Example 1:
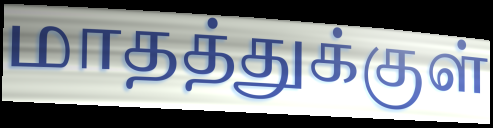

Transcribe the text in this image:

மாதத்துக்குள்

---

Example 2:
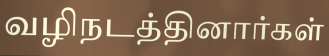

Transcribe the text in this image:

வழிநடத்தினார்கள்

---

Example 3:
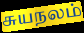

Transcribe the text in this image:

சுயநலம்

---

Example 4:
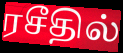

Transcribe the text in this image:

ரசீதில்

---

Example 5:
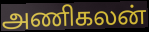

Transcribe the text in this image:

அணிகலன்